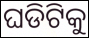
ଘଡିଟିକୁ